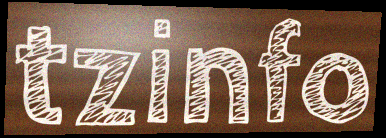
tzinfo